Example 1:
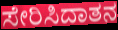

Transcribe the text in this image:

ಸೇರಿಸಿದಾತನ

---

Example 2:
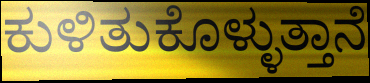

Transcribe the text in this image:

ಕುಳಿತುಕೊಳ್ಳುತ್ತಾನೆ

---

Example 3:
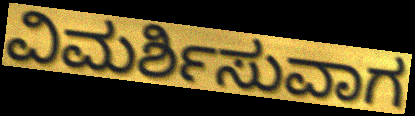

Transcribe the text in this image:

ವಿಮರ್ಶಿಸುವಾಗ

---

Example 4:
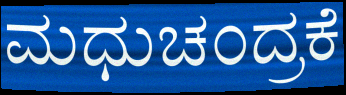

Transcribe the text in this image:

ಮಧುಚಂದ್ರಕೆ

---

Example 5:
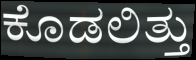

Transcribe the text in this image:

ಕೊಡಲಿತ್ತು